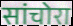
सांचोरा